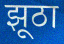
झूठा